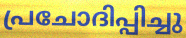
പ്രചോദിപ്പിച്ചു